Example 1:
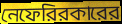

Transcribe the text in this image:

নেফেরিরকারের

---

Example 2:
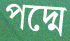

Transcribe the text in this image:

পদ্মে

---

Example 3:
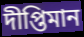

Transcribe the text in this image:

দীপ্তিমান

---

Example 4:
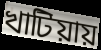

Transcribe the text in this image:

খাটিয়ায়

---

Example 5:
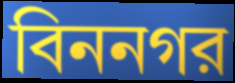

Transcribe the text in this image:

বিননগর